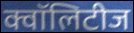
क्वॉलिटीज